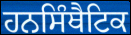
ਹਨਸਿੰਥੈਟਿਕ